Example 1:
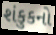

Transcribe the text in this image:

શંકુકનો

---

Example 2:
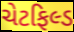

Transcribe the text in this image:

ચેટફિલ્ડ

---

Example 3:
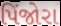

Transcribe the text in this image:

પિંજોરા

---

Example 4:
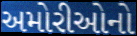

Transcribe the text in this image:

અમોરીઓનો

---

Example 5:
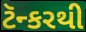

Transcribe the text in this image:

ટૅન્કરથી